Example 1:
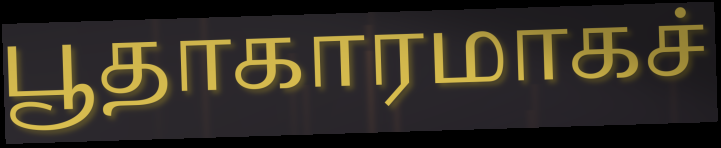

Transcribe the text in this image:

பூதாகாரமாகச்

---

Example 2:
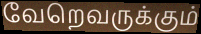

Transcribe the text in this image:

வேறெவருக்கும்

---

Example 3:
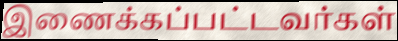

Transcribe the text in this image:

இணைக்கப்பட்டவர்கள்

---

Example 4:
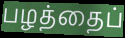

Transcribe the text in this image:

பழத்தைப்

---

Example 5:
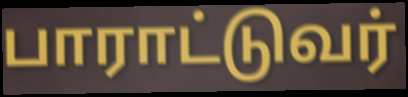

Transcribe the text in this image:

பாராட்டுவர்